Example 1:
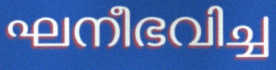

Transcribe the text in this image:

ഘനീഭവിച്ച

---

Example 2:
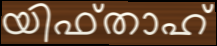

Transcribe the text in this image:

യിഫ്താഹ്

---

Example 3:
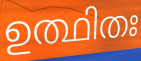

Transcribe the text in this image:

ഉത്ഥിതഃ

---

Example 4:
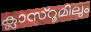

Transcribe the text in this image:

ക്ലാസ്റൂമിലും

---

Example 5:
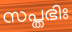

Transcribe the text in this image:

സപ്തഭിഃ